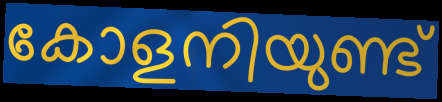
കോളനിയുണ്ട്